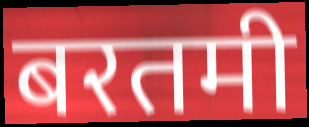
बरतमी